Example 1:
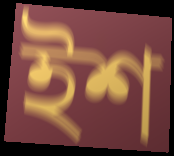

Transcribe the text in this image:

ইশ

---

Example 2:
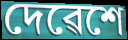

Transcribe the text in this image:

দেৱেশে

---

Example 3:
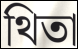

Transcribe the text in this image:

থিতা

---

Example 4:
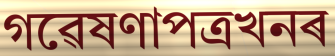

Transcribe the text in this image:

গৱেষণাপত্ৰখনৰ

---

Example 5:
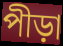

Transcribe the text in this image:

পীড়া